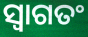
ସ୍ୱାଗତଂ